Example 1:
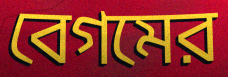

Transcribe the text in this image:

বেগমের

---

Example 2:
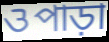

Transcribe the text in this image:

ওপাড়া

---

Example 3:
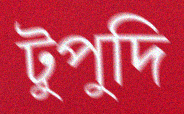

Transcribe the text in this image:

টুপুদি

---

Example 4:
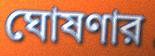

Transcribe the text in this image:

ঘোষণার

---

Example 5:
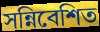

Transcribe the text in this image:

সন্নিবেশিত